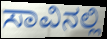
ಸಾವಿನಲ್ಲಿ